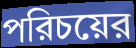
পরিচয়ের